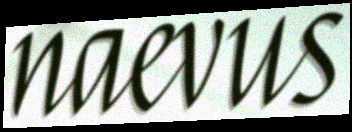
naevus